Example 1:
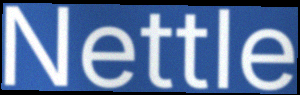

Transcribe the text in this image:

Nettle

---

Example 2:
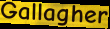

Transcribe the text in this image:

Gallagher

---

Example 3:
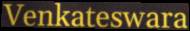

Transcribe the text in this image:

Venkateswara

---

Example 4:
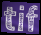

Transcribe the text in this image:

tif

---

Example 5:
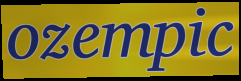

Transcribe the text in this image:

ozempic